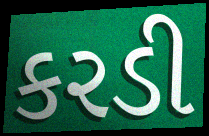
કરડી